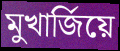
মুখাৰ্জিয়ে